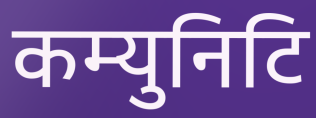
कम्युनिटि